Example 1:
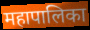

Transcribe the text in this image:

महापालिका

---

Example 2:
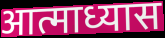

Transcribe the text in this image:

आत्माध्यास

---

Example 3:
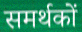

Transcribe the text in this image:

समर्थकों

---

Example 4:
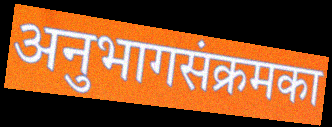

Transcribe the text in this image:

अनुभागसंक्रमका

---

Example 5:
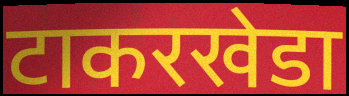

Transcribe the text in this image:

टाकरखेडा